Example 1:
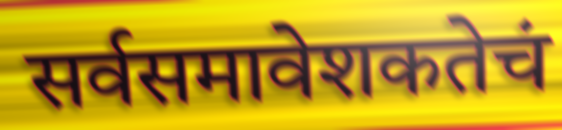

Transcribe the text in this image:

सर्वसमावेशकतेचं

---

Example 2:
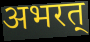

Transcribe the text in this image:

अभरत्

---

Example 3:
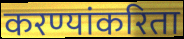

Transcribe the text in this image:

करण्यांकरिता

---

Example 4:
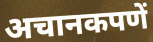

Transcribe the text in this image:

अचानकपणें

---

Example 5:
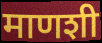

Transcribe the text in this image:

माणशी